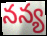
నన్య